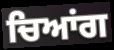
ਚਿਆਂਗ